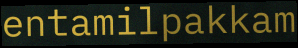
entamilpakkam